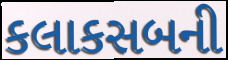
કલાકસબની